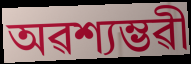
অৱশ্যম্ভৱী